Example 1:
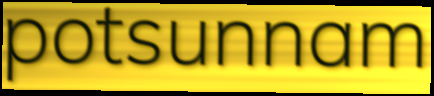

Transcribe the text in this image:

potsunnam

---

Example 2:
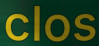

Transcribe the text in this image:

clos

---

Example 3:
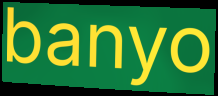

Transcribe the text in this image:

banyo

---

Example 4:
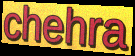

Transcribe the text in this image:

chehra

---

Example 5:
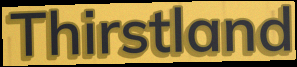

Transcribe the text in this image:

Thirstland